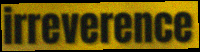
irreverence